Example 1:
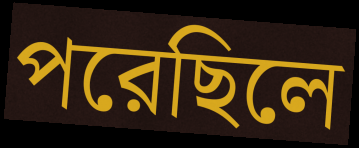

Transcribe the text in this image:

পরেছিলে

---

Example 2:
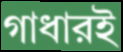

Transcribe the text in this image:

গাধারই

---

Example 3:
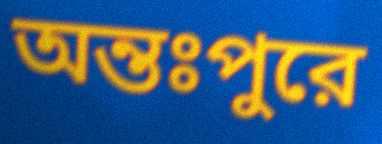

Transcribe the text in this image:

অন্তঃপুরে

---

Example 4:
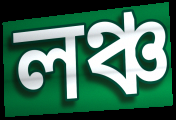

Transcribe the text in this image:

লঞ্চ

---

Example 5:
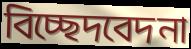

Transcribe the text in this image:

বিচ্ছেদবেদনা